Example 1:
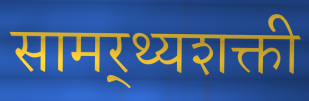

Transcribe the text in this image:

सामर्थ्यशक्ती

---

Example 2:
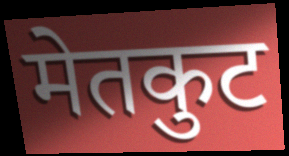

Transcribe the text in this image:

मेतकुट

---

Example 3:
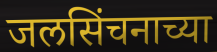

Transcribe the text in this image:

जलसिंचनाच्या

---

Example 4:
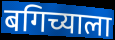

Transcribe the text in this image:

बगिच्याला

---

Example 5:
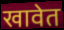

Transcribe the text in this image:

खावेत